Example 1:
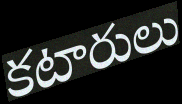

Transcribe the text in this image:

కటారులు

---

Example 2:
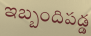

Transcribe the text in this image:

ఇబ్బందిపడ్డ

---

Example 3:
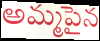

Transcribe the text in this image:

అమ్మపైన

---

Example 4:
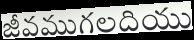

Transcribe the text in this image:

జీవముగలదియు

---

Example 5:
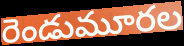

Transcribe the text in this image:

రెండుమూరల